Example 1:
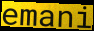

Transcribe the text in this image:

emani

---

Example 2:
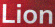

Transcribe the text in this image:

Lion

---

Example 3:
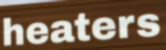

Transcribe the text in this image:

heaters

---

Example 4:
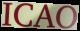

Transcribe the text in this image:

ICAO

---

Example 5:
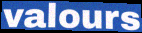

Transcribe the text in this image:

valours